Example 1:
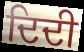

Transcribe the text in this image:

ਦਿਦੀ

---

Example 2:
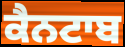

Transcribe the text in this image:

ਕੈਨਟਾਬ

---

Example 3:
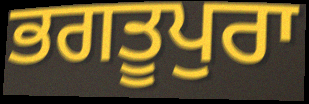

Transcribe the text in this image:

ਭਗਤੂਪੁਰਾ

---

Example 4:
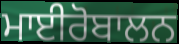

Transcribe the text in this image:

ਮਾਈਰੋਬਾਲਨ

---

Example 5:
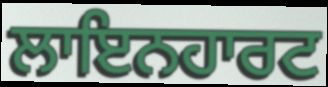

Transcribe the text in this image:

ਲਾਇਨਹਾਰਟ